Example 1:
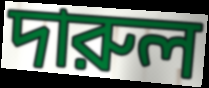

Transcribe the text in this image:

দারুল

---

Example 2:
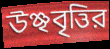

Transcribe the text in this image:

উঞ্ছবৃত্তির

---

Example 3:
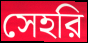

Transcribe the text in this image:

সেহরি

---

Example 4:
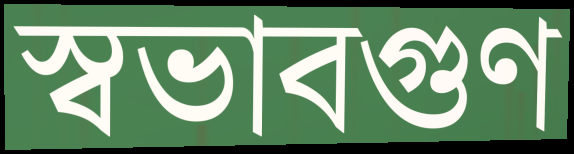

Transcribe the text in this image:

স্বভাবগুণ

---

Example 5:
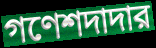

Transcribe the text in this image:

গণেশদাদার